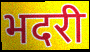
भदरी